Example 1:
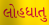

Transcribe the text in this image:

લોહધાતુ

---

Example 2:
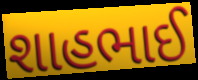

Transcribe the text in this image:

શાહભાઈ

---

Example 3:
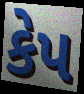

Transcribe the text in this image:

કેપ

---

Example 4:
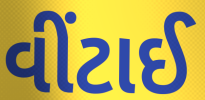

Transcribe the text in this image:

વીંટાઈ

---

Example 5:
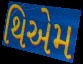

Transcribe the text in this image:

થિએમ